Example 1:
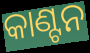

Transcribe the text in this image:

କାଣ୍ଟନ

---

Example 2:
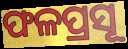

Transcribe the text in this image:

ଫଳପ୍ରସୂ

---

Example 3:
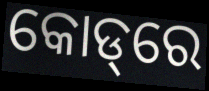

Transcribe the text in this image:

କୋଡ୍‌ରେ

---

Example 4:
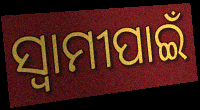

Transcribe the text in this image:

ସ୍ୱାମୀପାଇଁ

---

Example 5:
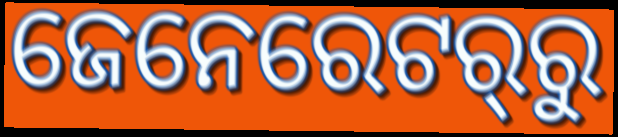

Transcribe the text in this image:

ଜେନେରେଟର୍‌ରୁ